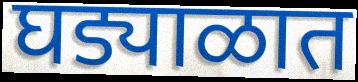
घड्याळात